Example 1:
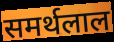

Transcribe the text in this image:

समर्थलाल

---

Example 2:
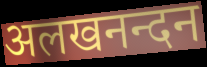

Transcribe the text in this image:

अलखनन्दन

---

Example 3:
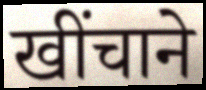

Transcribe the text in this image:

खींचाने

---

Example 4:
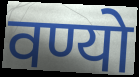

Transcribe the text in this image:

वण्यो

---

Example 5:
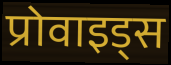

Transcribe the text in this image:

प्रोवाइड्स